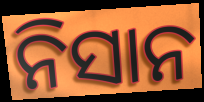
ନିସାନ